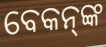
ବେକନ୍‌ଙ୍କ